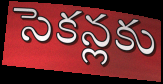
సెకన్లకు